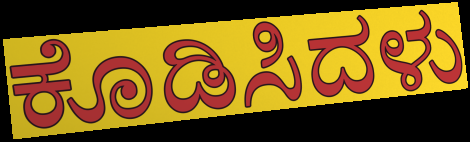
ಕೊಡಿಸಿದಳು